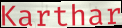
Karthar